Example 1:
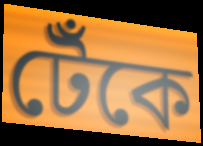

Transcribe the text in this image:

টেঁকে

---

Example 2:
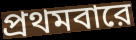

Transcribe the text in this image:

প্রথমবারে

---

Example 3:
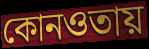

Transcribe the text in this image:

কোনওতায়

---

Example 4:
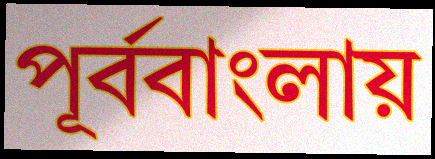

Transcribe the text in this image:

পূর্ববাংলায়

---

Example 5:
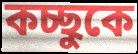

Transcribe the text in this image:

কচ্ছুকে